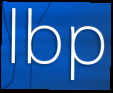
lbp